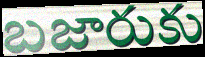
బజారుకు